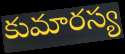
కుమారస్య